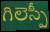
గిలెస్పీ